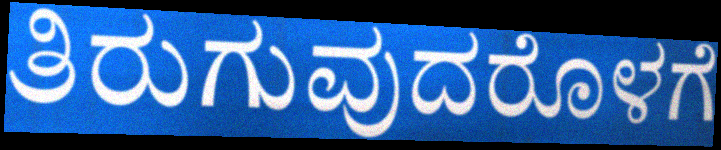
ತಿರುಗುವುದರೊಳಗೆ